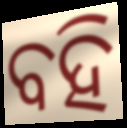
ବହି